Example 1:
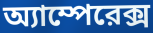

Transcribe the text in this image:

অ্যাম্পেরেক্স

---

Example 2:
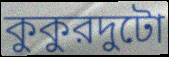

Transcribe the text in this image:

কুকুরদুটো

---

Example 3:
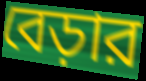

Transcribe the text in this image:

বেড়ার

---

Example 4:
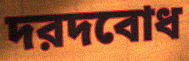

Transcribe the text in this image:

দরদবোধ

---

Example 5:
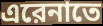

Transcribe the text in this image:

এরেনাতে